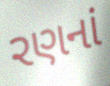
રણનાં